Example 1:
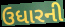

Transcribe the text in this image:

ઉધારની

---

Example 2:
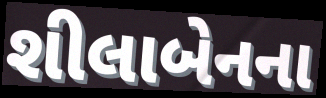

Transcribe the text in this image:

શીલાબેનના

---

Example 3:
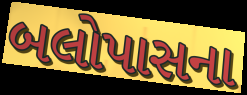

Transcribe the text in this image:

બલોપાસના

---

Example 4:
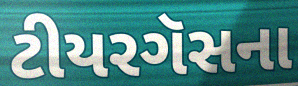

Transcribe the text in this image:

ટીયરગૅસના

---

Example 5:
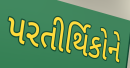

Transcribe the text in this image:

પરતીર્થિકોને